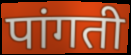
पांगती